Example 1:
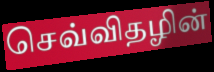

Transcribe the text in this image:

செவ்விதழின்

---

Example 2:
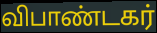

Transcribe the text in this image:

விபாண்டகர்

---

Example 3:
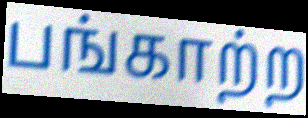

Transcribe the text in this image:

பங்காற்ற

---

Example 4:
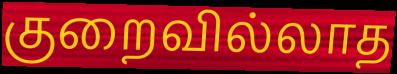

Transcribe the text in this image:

குறைவில்லாத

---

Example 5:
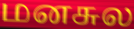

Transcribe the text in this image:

மனசுல